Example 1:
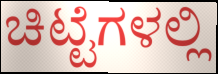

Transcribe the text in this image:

ಚಿಟ್ಟೆಗಳಲ್ಲಿ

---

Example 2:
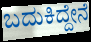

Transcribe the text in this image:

ಬದುಕಿದ್ದೇನೆ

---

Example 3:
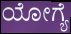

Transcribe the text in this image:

ಯೋಗ್ಯೆ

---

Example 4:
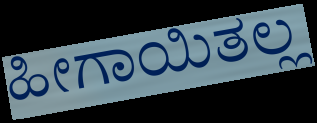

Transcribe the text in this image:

ಹೀಗಾಯಿತಲ್ಲ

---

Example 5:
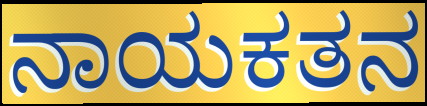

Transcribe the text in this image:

ನಾಯಕತನ